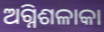
ଅଗ୍ନିଶଳାକା